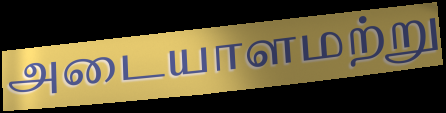
அடையாளமற்று